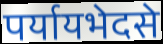
पर्यायभेदसे